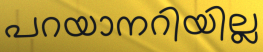
പറയാനറിയില്ല